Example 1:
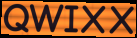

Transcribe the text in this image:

QWIXX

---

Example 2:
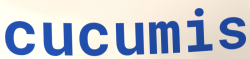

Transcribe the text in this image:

cucumis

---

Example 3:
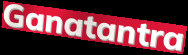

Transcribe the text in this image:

Ganatantra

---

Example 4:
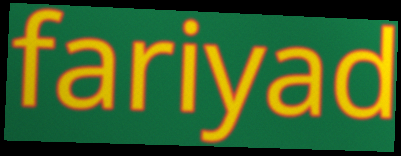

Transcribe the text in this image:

fariyad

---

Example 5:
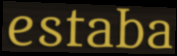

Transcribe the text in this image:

estaba